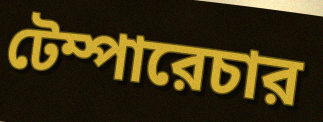
টেম্পারেচার